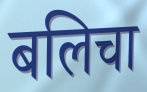
बलिचा